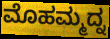
ಮೊಹಮ್ಮದ್ನ